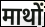
माथों